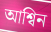
আশ্বিন